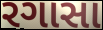
રગાસા